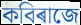
কবিৰাজে